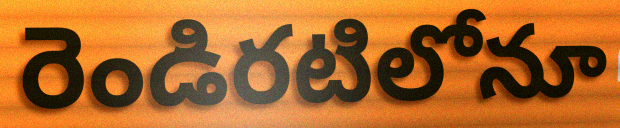
రెండిరటిలోనూ